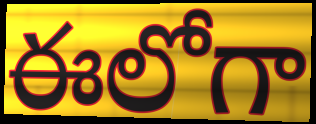
ఈలోగా